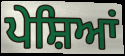
ਪੇਸ਼ਿਆਂ